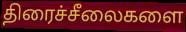
திரைச்சீலைகளை